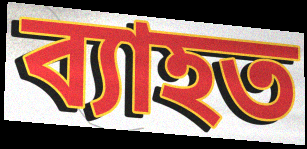
ব্যাহত